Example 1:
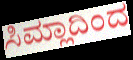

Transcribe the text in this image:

ಸಿಮ್ಲಾದಿಂದ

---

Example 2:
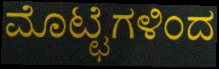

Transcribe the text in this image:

ಮೊಟ್ಟೆಗಳಿಂದ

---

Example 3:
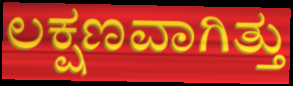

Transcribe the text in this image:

ಲಕ್ಷಣವಾಗಿತ್ತು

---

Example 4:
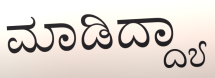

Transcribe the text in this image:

ಮಾಡಿದ್ದ್ಯಾ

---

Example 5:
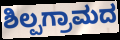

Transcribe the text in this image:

ಶಿಲ್ಪಗ್ರಾಮದ